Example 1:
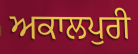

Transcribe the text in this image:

ਅਕਾਲਪੁਰੀ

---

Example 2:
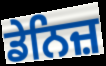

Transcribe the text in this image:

ਡੇਨਿਜ਼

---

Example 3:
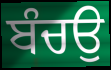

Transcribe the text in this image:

ਬੰਚਉ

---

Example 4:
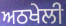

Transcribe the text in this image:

ਅਠਖੇਲੀ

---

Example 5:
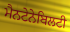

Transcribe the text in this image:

ਮੈਨਟੇਨੇਬਿਲਟੀ